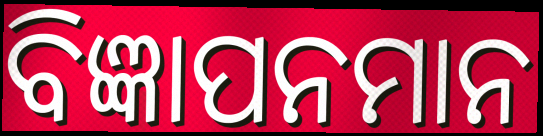
ବିଜ୍ଞାପନମାନ